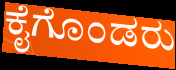
ಕೈಗೊಂಡರು